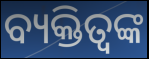
ବ୍ୟକ୍ତିତ୍ବଙ୍କ